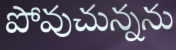
పోవుచున్నను